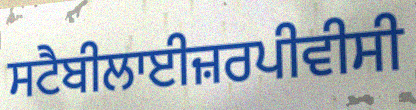
ਸਟੈਬੀਲਾਈਜ਼ਰਪੀਵੀਸੀ